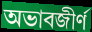
অভাবজীর্ণ